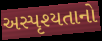
અસ્પૃશ્યતાનો